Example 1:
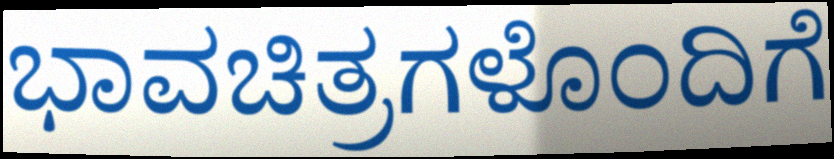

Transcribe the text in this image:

ಭಾವಚಿತ್ರಗಳೊಂದಿಗೆ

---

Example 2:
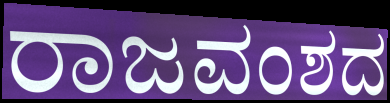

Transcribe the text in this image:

ರಾಜವಂಶದ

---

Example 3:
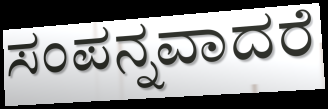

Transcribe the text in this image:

ಸಂಪನ್ನವಾದರೆ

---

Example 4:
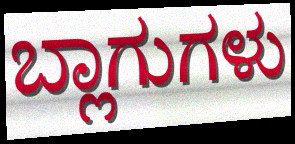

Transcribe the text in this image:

ಬ್ಲಾಗುಗಳು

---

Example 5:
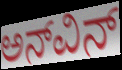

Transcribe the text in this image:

ಅನ್‌ವಿನ್